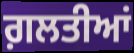
ਗ਼ਲਤੀਆਂ